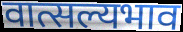
वात्सल्यभाव